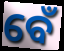
ବେଁ